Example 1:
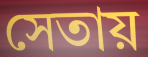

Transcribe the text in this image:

সেতায়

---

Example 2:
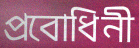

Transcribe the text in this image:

প্রবোধিনী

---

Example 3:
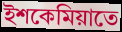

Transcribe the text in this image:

ইশকেমিয়াতে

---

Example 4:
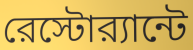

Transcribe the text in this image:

রেস্টোর‍্যান্টে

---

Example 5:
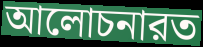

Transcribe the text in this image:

আলোচনারত